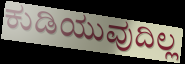
ಕುಡಿಯುವುದಿಲ್ಲ